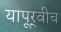
यापूर्वीच